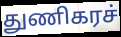
துணிகரச்